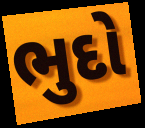
ભુદો